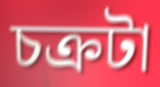
চক্রটা